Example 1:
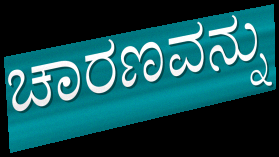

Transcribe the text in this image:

ಚಾರಣವನ್ನು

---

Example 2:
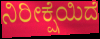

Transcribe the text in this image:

ನಿರೀಕ್ಷೆಯಿದೆ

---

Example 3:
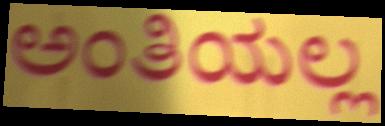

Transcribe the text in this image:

ಅಂತಿಯಲ್ಲ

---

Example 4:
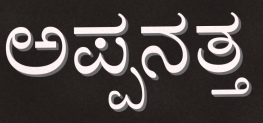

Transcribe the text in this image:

ಅಪ್ಪನತ್ತ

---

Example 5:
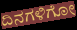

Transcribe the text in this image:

ದಿನಗಳಿಗೋ